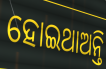
ହୋଇଥାଅନ୍ତି